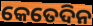
କେତେଦିନ